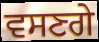
ਵਸਣਗੇ